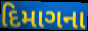
દિમાગના